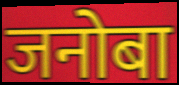
जनोबा